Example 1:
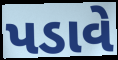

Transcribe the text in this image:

પડાવે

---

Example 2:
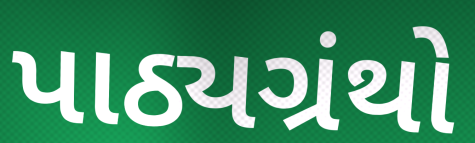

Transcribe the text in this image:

પાઠ્યગ્રંથો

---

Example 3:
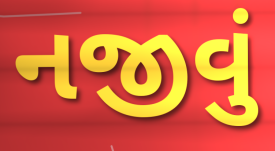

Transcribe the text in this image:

નજીવું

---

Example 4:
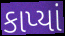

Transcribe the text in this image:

કાપ્યાં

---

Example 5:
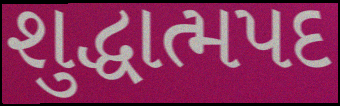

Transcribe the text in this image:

શુદ્ધાત્મપદ